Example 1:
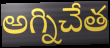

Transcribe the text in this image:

అగ్నిచేత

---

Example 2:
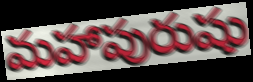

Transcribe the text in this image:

మహాపురుషు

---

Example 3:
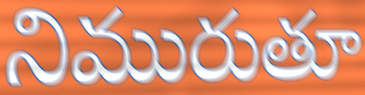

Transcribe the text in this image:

నిమురుతూ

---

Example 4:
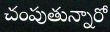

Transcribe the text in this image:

చంపుతున్నారో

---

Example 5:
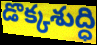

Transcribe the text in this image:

డొక్కశుద్ధి